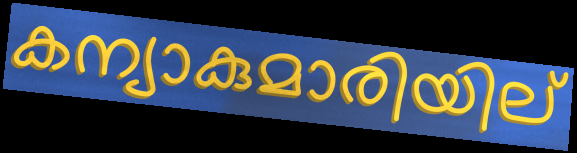
കന്യാകുമാരിയില്